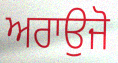
ਅਰਾਉਜੋ